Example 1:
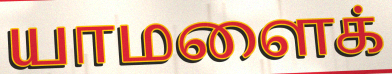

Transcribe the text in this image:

யாமளைக்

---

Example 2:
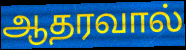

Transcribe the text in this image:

ஆதரவால்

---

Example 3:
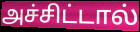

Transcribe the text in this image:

அச்சிட்டால்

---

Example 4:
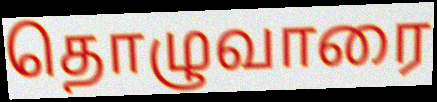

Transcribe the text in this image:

தொழுவாரை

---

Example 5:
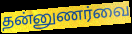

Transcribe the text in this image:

தன்னுணர்வை